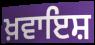
ਖ਼ਵਾਇਸ਼